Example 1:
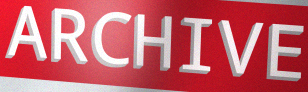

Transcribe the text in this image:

ARCHIVE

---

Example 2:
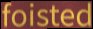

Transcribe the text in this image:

foisted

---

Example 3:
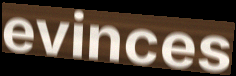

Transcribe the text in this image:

evinces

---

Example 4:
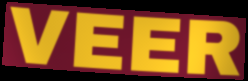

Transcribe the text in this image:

VEER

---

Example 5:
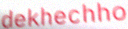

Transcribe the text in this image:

dekhechho